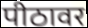
पीठावर